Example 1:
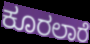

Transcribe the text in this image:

ಕೂರಲಾರೆ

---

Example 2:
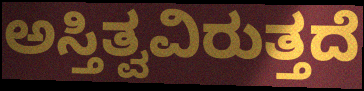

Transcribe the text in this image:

ಅಸ್ತಿತ್ವವಿರುತ್ತದೆ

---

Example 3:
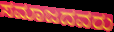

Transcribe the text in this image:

ಸಮಾಜದವರು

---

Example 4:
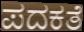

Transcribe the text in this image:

ಪದಕತೆ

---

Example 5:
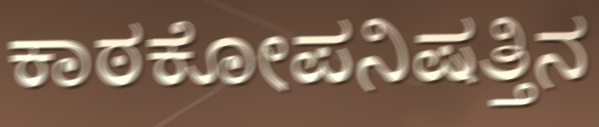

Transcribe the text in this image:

ಕಾಠಕೋಪನಿಷತ್ತಿನ